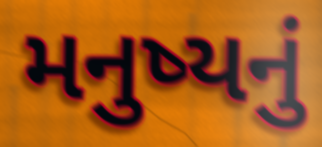
મનુષ્યનું